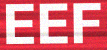
EEF